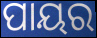
ପାୟର